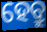
ହେବ୍ରୁ